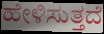
ಹೇಳಿಸುತ್ತದೆ